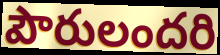
పౌరులందరి